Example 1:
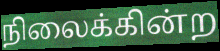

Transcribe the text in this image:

நிலைக்கின்ற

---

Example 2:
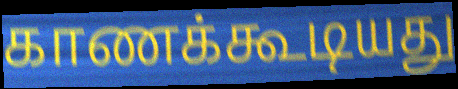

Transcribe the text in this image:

காணக்கூடியது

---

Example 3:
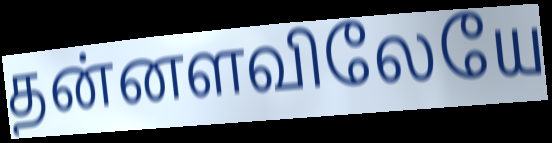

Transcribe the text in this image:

தன்னளவிலேயே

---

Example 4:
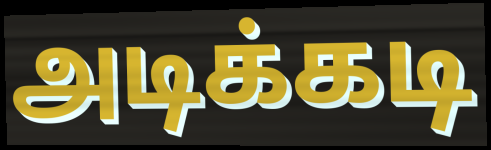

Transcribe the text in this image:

அடிக்கடி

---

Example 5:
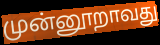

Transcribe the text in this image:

முன்னூறாவது